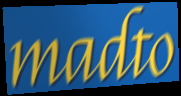
madto